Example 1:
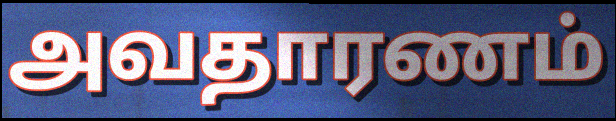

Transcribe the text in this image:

அவதாரணம்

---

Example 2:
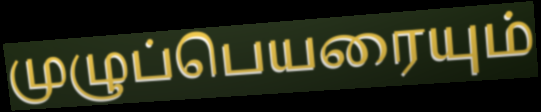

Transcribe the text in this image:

முழுப்பெயரையும்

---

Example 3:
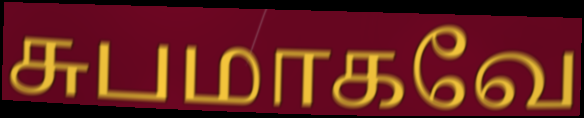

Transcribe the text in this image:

சுபமாகவே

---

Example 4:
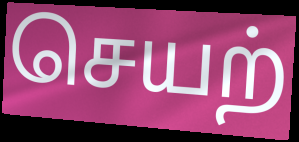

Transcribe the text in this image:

செயற்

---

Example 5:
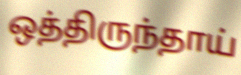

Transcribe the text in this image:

ஒத்திருந்தாய்